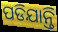
ପଡିଯାନ୍ତି